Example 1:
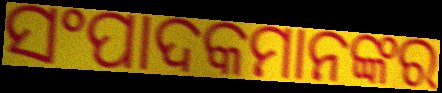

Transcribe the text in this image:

ସଂପାଦକମାନଙ୍କର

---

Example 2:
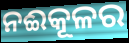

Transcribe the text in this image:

ନଈକୂଳର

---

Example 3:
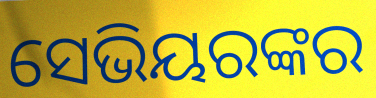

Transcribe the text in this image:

ସେଭିୟରଙ୍କର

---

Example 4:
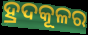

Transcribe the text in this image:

ହ୍ରଦକୂଳର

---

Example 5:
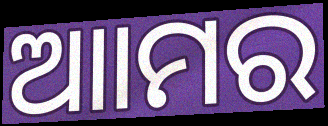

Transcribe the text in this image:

ଆାମର